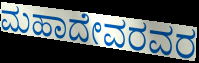
ಮಹಾದೇವರವರ